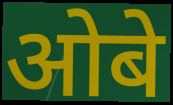
ओबे